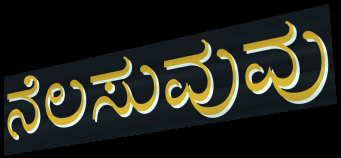
ನೆಲಸುವುವು